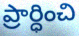
ప్రార్ధించి